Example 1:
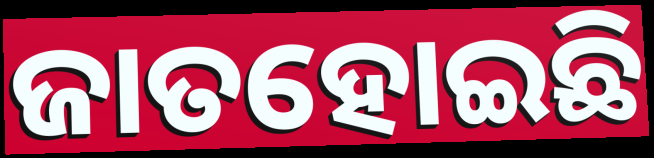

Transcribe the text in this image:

ଜାତହୋଇଛି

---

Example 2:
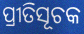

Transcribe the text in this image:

ପ୍ରୀତିସୂଚକ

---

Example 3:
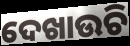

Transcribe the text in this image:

ଦେଖାଉଚି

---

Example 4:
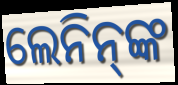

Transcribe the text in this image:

ଲେନିନ୍‌ଙ୍କ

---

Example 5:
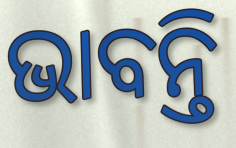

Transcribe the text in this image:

ଭାବନ୍ତି